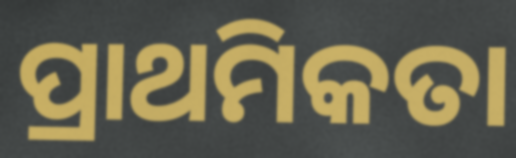
ପ୍ରାଥମିକତା